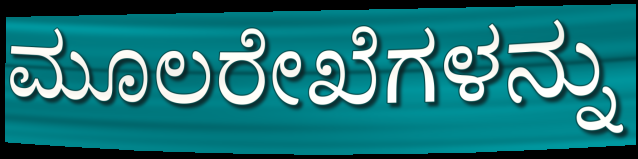
ಮೂಲರೇಖೆಗಳನ್ನು